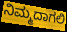
ನಿಮ್ಮದಾಗಲಿ